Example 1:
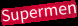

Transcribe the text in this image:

Supermen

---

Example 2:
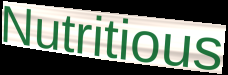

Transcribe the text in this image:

Nutritious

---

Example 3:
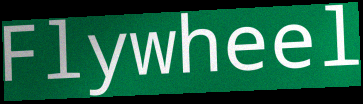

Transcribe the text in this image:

Flywheel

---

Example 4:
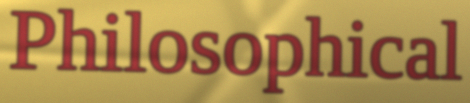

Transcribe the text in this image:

Philosophical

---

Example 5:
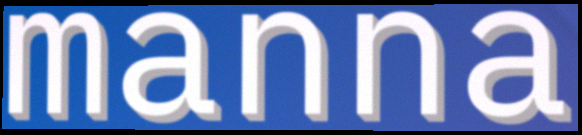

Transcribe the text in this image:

manna